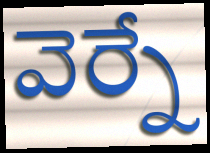
వెర్నే